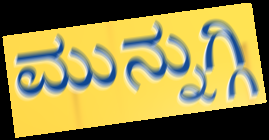
ಮುನ್ನುಗ್ಗಿ